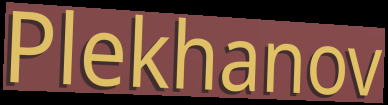
Plekhanov